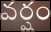
వర్షం